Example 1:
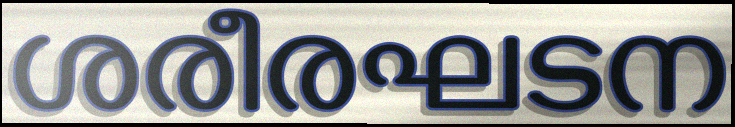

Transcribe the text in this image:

ശരീരഘടന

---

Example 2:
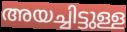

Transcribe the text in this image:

അയച്ചിട്ടുള്ള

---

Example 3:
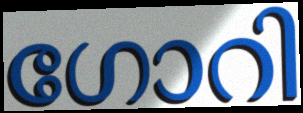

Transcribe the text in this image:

ഗോറി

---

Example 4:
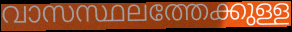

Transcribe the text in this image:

വാസസ്ഥലത്തേക്കുള്ള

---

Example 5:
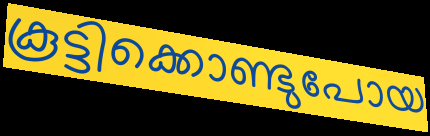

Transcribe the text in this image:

കൂട്ടിക്കൊണ്ടുപോയ